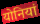
योनियां